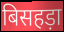
बिसहड़ा